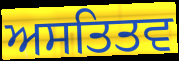
ਅਸਤਿਤਵ